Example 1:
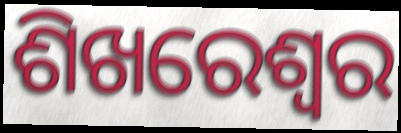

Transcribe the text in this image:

ଶିଖରେଶ୍ୱର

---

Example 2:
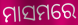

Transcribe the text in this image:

ମାସମରେ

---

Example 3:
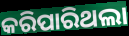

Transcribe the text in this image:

କରିପାରିଥଲା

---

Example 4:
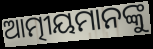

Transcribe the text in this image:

ଆତ୍ମୀୟମାନଙ୍କୁ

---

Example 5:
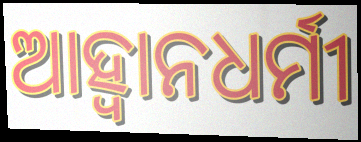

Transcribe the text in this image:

ଆହ୍ବାନଧର୍ମୀ